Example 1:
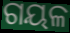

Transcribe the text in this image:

ଗୟଳ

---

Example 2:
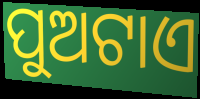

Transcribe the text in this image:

ପୁଅଟାଏ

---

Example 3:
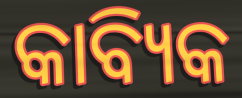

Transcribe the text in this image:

କାବ୍ୟିକ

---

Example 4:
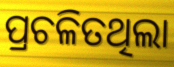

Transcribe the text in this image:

ପ୍ରଚଳିତଥିଲା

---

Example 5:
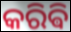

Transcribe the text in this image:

କରିଵି